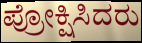
ಪ್ರೋಕ್ಷಿಸಿದರು